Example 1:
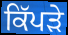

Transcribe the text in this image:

ਕਿੱਪੜੇ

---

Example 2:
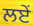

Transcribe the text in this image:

ਲਏਂ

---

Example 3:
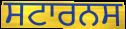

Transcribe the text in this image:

ਸਟਾਰਨਸ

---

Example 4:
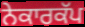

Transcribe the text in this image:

ਨੇਕਾਰਕੱਪ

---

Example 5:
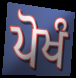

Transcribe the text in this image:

ਪੋਖੰ